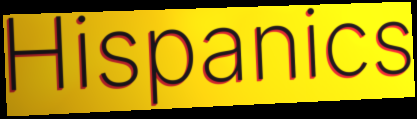
Hispanics